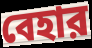
বেহার